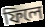
ফিলে